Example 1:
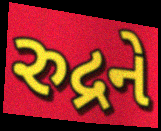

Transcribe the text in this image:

રુદ્રને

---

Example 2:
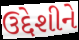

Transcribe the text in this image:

ઉદ્દેશીને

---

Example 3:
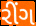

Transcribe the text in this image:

રીંગ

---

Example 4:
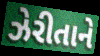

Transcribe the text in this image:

ઝેરીતાને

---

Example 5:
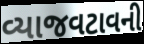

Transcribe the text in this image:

વ્યાજવટાવની